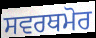
ਸਵਰਥਮੋਰ